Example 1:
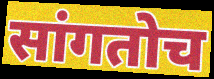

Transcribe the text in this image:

सांगतोच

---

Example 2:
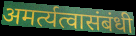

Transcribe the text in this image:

अमर्त्यत्वासंबंधी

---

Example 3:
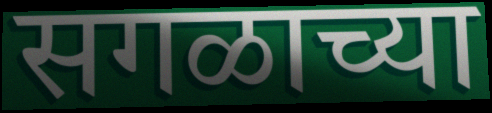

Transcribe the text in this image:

सगळाच्या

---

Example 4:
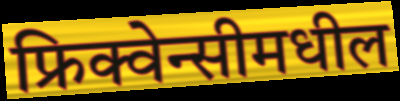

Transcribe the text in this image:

फ्रिक्वेन्सीमधील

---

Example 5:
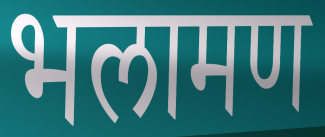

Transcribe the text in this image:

भलामण